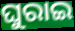
ଘୁରାଇ